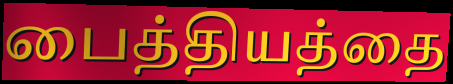
பைத்தியத்தை